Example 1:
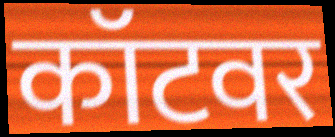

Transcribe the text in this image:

कॉटवर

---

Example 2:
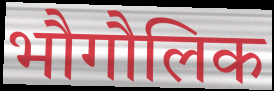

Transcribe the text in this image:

भौगौलिक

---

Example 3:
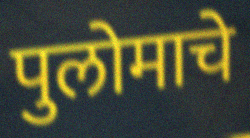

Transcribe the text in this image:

पुलोमाचे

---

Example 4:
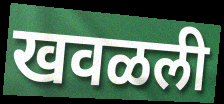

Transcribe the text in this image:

खवळली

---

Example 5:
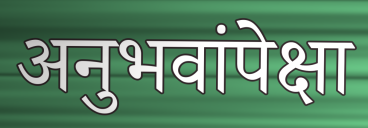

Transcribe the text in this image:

अनुभवांपेक्षा